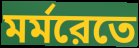
মর্মরেতে